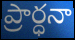
ప్రార్ధనా